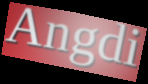
Angdi